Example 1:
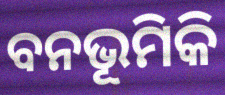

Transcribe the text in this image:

ବନଭୂମିକି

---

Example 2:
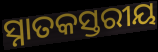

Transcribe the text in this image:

ସ୍ନାତକସ୍ତରୀୟ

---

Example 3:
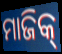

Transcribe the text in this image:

ମାଜିକ୍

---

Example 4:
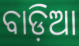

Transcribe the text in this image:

ବାଡ଼ିଆ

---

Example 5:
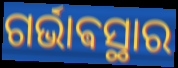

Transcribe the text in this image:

ଗର୍ଭାଵସ୍ଥାର